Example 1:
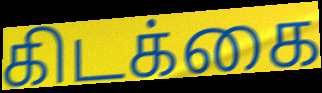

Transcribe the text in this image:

கிடக்கை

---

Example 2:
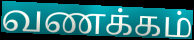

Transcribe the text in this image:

வணக்கம்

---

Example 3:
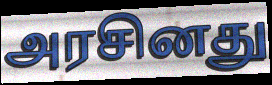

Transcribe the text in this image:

அரசினது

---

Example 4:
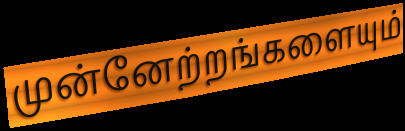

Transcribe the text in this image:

முன்னேற்றங்களையும்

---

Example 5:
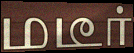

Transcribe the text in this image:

மடீர்